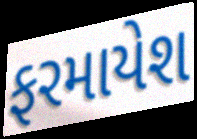
ફરમાયેશ